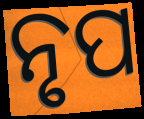
ନୃପ